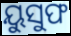
ୟୁସୁଫ